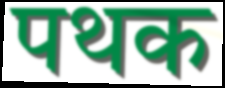
पथक